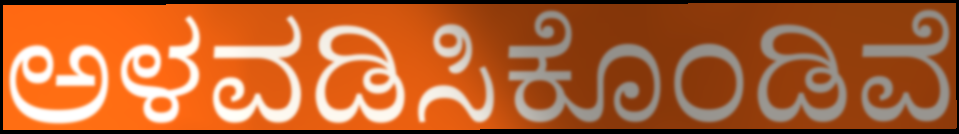
ಅಳವಡಿಸಿಕೊಂಡಿವೆ